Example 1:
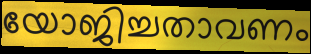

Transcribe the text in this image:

യോജിച്ചതാവണം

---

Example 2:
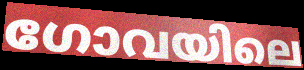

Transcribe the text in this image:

ഗോവയിലെ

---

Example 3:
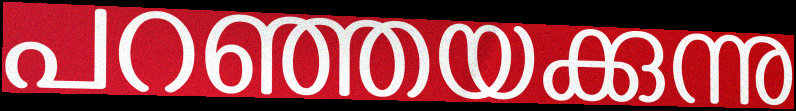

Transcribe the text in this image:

പറഞ്ഞയക്കുന്നു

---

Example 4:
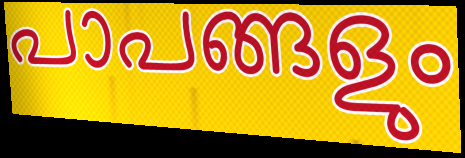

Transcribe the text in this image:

പാപങ്ങളും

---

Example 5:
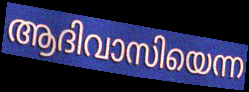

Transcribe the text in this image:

ആദിവാസിയെന്ന